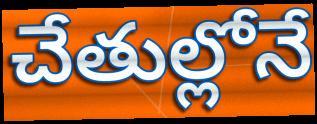
చేతుల్లోనే